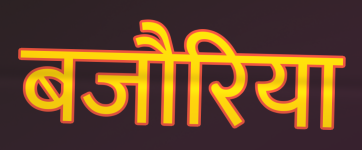
बजौरिया